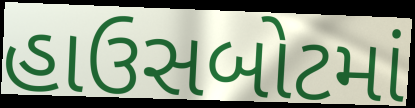
હાઉસબોટમાં